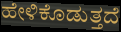
ಹೇಳಿಕೊಡುತ್ತದೆ